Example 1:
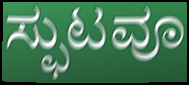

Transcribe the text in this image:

ಸ್ಫುಟವೂ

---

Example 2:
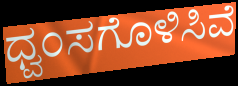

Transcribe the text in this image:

ಧ್ವಂಸಗೊಳಿಸಿವೆ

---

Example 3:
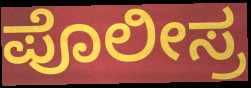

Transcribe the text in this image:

ಪೊಲೀಸ್ರ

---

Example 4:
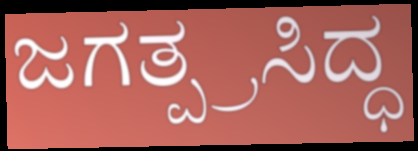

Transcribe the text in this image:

ಜಗತ್ಪ್ರಸಿದ್ಧ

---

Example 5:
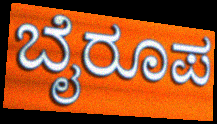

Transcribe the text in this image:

ಬೈರೂಪ